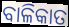
ବାଳିକାତ